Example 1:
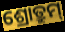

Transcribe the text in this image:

ଶ୍ରୋତ୍ରୁମ୍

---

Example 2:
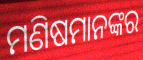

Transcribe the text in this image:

ମଣିଷମାନଙ୍କର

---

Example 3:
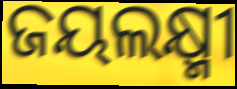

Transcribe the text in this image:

ଜୟଲକ୍ଷ୍ମୀ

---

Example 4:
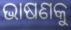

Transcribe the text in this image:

ଭାଷଣକୁ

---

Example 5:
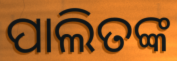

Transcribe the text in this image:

ପାଲିତଙ୍କ